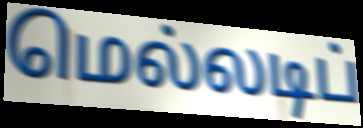
மெல்லடிப்